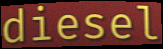
diesel